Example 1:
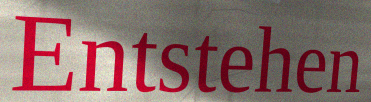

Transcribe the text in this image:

Entstehen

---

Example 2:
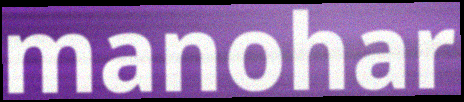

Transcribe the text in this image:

manohar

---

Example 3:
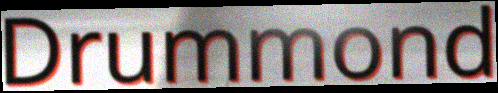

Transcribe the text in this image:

Drummond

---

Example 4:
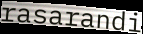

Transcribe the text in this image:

rasarandi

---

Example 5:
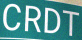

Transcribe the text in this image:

CRDT